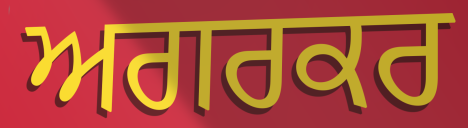
ਅਗਰਕਰ